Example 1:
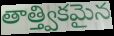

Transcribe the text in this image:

తాత్త్వికమైన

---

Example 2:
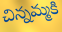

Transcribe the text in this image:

చిన్నమ్మకి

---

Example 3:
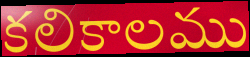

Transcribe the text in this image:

కలికాలము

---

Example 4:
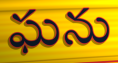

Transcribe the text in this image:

ఘను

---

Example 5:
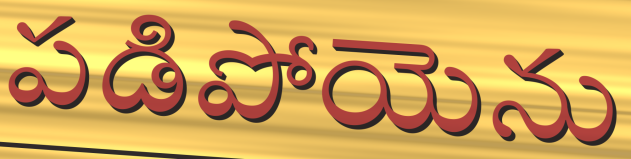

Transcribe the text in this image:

పడిపోయెను